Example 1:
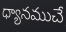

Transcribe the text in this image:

ధ్యానముచే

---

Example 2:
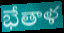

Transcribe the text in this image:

భేతాళ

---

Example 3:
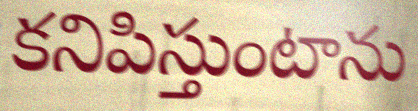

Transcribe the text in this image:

కనిపిస్తుంటాను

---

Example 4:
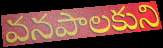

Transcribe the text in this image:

వనపాలకుని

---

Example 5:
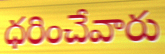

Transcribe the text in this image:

ధరించేవారు